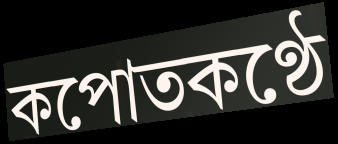
কপোতকণ্ঠে